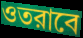
ওতরাবে